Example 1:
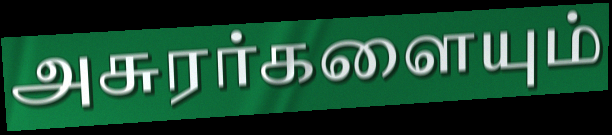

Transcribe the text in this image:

அசுரர்களையும்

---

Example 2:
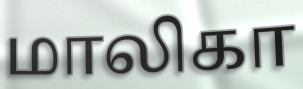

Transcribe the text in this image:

மாலிகா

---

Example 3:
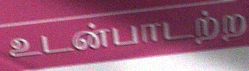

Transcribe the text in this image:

உடன்பாடற்ற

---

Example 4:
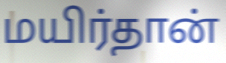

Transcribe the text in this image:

மயிர்தான்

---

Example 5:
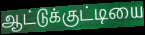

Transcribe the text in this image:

ஆட்டுக்குட்டியை